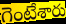
గెంటేశారు